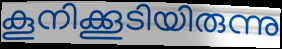
കൂനിക്കൂടിയിരുന്നു